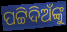
ପଟ୍ଟିଦିଅଁଙ୍କୁ